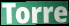
Torre